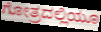
ಗೋತ್ರದಲ್ಲಿಯೂ